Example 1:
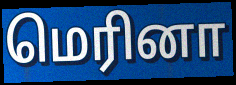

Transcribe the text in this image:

மெரினா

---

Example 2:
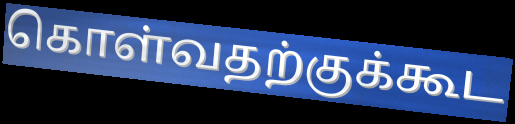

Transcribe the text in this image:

கொள்வதற்குக்கூட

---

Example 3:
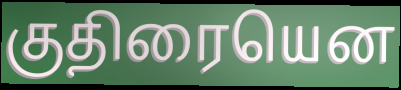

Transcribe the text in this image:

குதிரையென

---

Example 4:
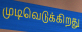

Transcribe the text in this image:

முடிவெடுக்கிறது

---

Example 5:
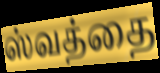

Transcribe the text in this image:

ஸ்வத்தை